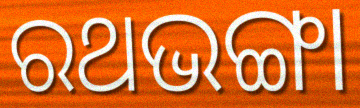
ରଥଭଙ୍ଗା